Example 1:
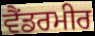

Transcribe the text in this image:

ਵੈਂਡਰਮੀਰ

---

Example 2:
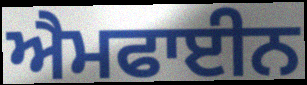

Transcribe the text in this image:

ਐਮਫਾਈਨ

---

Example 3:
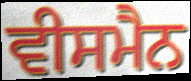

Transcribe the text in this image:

ਵੀਸਮੈਨ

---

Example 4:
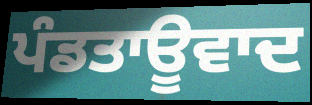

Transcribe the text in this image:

ਪੰਡਤਾਊਵਾਦ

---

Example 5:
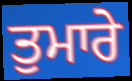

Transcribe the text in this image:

ਤੁਮਾਰੇ